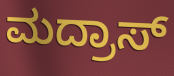
ಮದ್ರಾಸ್